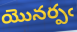
యొనర్పఁ